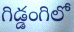
గిడ్డంగిలో